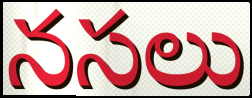
నసలు